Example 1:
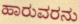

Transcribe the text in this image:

ಹಾರುವರನು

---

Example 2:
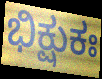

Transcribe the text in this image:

ಭಿಕ್ಷುಕಃ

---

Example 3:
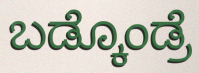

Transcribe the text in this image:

ಬಡ್ಕೊಂಡ್ರೆ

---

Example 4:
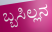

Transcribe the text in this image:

ಬ್ಬಸಿಲ್ಲನ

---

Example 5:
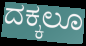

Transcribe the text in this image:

ದಕ್ಕಲೂ